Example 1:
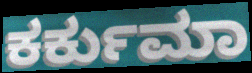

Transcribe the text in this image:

ಕರ್ಕುಮಾ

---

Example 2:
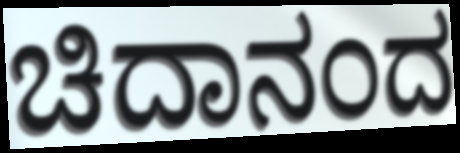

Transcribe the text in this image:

ಚಿದಾನಂದ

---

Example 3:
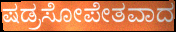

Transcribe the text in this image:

ಷಡ್ರಸೋಪೇತವಾದ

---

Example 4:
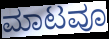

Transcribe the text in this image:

ಮಾಟವೂ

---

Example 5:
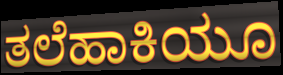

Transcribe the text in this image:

ತಲೆಹಾಕಿಯೂ